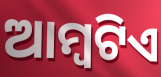
ଆମ୍ବଟିଏ